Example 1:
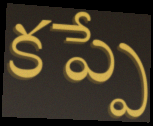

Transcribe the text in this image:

కప్పే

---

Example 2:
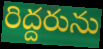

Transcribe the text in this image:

రిద్దరును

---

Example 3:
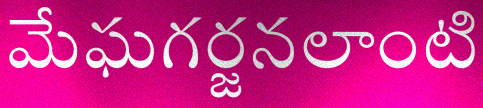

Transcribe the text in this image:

మేఘగర్జనలాంటి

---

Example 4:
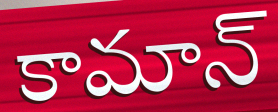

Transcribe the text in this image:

కామాన్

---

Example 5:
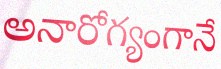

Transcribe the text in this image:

అనారోగ్యంగానే